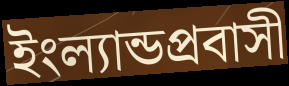
ইংল্যান্ডপ্রবাসী